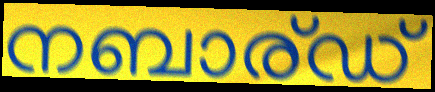
നബാര്ഡ്